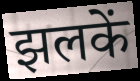
झलकें